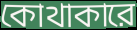
কোথাকারে